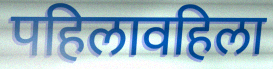
पहिलावहिला